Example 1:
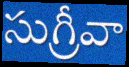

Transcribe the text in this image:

సుగ్రీవా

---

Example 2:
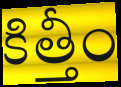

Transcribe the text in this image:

కిత్తీం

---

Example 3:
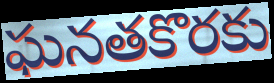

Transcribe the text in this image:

ఘనతకొరకు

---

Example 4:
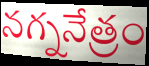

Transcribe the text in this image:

నగ్ననేత్రం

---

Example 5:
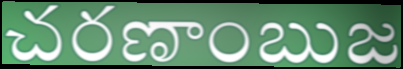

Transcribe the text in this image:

చరణాంబుజ